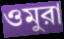
ওমুরা